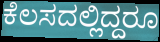
ಕೆಲಸದಲ್ಲಿದ್ದರೂ